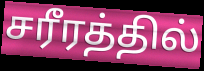
சரீரத்தில்